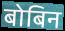
बोबिन